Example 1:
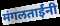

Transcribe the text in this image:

मंगलताईंनी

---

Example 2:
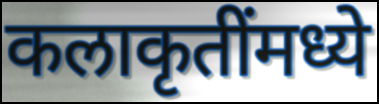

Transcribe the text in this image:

कलाकृतींमध्ये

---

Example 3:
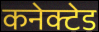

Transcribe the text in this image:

कनेक्टेड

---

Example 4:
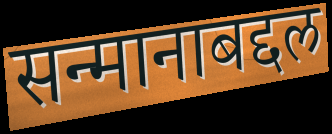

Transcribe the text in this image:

सन्मानाबद्दल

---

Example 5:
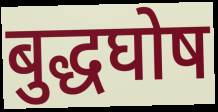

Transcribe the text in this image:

बुद्धघोष